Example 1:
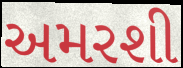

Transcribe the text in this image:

અમરશી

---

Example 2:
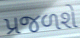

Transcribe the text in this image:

પ્રજળશે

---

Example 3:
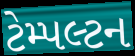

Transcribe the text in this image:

ટેમ્પલ્ટન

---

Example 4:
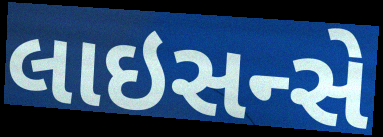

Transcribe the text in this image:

લાઇસન્સે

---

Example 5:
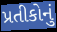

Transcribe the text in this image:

પ્રતીકોનું